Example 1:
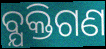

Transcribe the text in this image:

ବ୍ଯକ୍ତିଗଣ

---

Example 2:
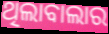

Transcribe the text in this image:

ଥିଲାବାଲାର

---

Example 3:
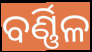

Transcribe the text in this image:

ବର୍ଣ୍ଣିଳ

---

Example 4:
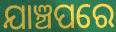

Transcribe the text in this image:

ଯାଞ୍ଚପରେ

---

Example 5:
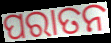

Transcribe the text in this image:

ପରାତନ